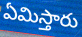
ఏమిస్తారు